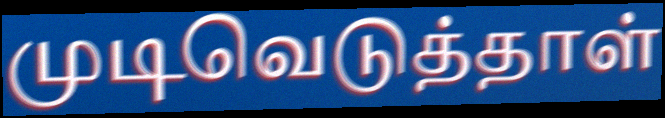
முடிவெடுத்தாள்